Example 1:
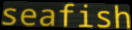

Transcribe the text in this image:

seafish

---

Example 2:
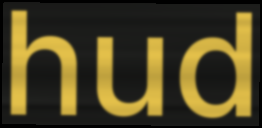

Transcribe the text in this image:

hud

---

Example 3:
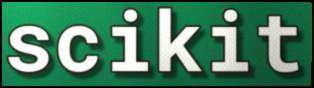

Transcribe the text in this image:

scikit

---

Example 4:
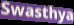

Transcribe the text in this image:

Swasthya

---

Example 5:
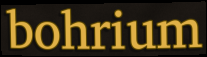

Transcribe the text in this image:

bohrium